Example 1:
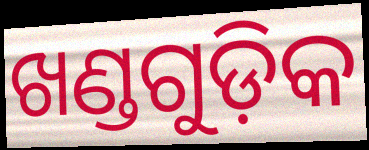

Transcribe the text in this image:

ଖଣ୍ଡଗୁଡ଼ିକ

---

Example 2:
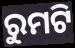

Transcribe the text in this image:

ରୁମଟି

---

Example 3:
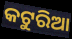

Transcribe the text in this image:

କଟୁରିଆ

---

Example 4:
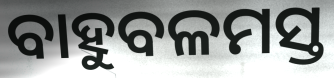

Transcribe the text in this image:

ବାହୁବଳମସ୍ତ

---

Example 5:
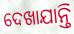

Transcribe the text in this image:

ଦେଖାଯାନ୍ତି